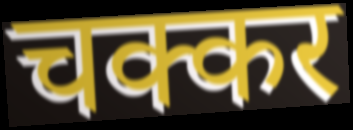
चक्कर